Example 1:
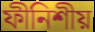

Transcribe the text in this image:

ফীনিশীয়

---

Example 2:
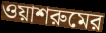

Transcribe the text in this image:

ওয়াশরুমের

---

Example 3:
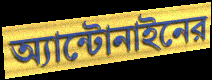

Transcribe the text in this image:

অ্যান্টোনাইনের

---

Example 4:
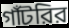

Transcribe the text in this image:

গাঁটরির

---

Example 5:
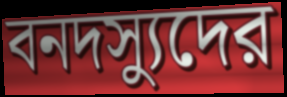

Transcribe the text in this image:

বনদস্যুদের